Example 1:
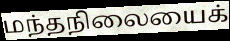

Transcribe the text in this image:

மந்தநிலையைக்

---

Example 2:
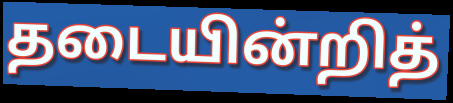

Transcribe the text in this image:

தடையின்றித்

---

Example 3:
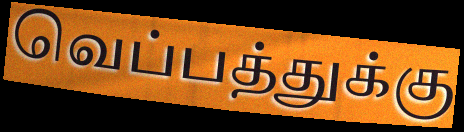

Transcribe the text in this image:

வெப்பத்துக்கு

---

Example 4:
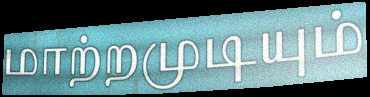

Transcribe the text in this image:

மாற்றமுடியும்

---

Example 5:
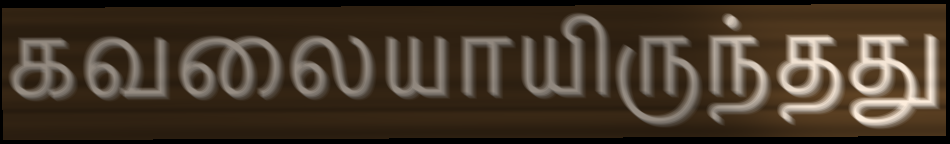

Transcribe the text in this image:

கவலையாயிருந்தது